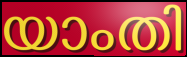
യാംതി